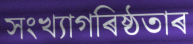
সংখ্যাগৰিষ্ঠতাৰ